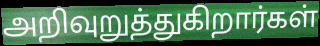
அறிவுறுத்துகிறார்கள்